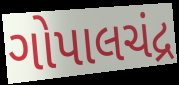
ગોપાલચંદ્ર